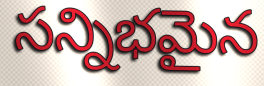
సన్నిభమైన